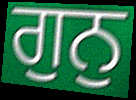
ਗੁਨੁ